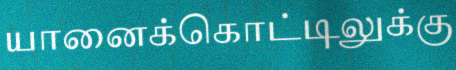
யானைக்கொட்டிலுக்கு